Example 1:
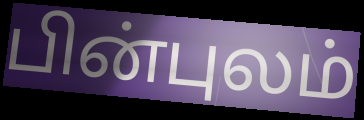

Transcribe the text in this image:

பின்புலம்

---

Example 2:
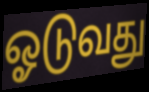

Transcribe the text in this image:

ஓடுவது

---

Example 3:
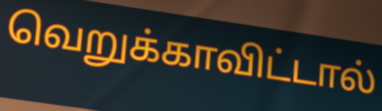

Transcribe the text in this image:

வெறுக்காவிட்டால்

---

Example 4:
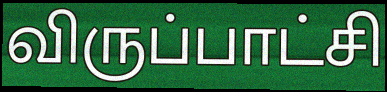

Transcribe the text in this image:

விருப்பாட்சி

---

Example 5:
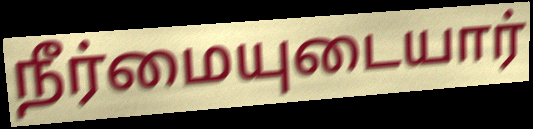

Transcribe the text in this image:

நீர்மையுடையார்